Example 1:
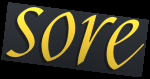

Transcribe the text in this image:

sore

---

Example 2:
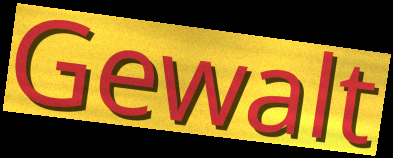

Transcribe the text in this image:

Gewalt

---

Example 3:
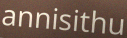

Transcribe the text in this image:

annisithu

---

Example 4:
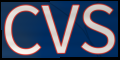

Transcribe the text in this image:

CVS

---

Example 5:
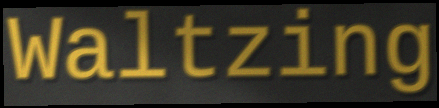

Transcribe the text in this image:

Waltzing